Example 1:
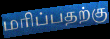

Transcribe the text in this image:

மரிப்பதற்கு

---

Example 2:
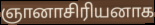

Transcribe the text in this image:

ஞானாசிரியனாக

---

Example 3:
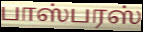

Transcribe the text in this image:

பாஸ்பரஸ்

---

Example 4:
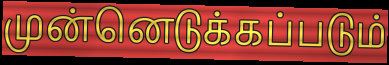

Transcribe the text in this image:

முன்னெடுக்கப்படும்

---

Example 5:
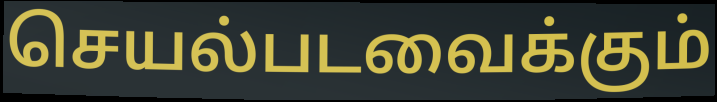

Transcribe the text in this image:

செயல்படவைக்கும்